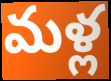
మళ్ల